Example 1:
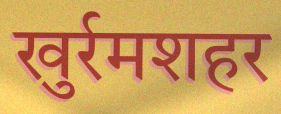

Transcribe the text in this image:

खुर्रमशहर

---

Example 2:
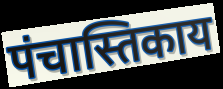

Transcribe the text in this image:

पंचास्तिकाय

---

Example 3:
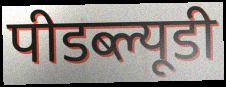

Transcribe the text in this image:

पीडब्ल्यूडी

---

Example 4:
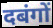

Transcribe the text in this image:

दबंगों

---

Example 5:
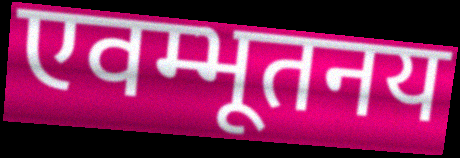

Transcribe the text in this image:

एवम्भूतनय